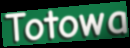
Totowa